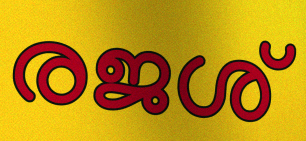
രജശ്